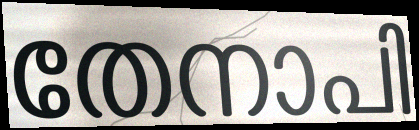
തേനാപി